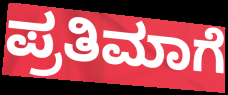
ಪ್ರತಿಮಾಗೆ